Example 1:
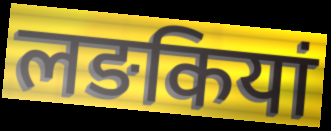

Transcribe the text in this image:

लङकियां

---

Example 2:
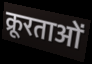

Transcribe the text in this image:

क्रूरताओं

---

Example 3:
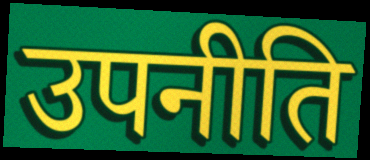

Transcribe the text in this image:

उपनीति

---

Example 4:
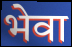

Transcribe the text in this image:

भेवा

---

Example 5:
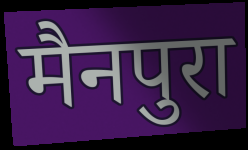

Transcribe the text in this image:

मैनपुरा